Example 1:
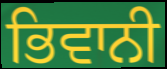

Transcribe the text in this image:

ਭਿਵਾਨੀ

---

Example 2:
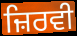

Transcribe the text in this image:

ਜ਼ਿਰਵੀ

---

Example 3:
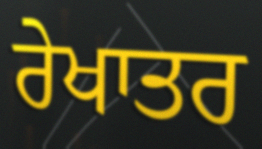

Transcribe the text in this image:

ਰੇਖਾਤਰ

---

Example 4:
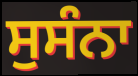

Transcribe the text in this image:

ਸੁਸੰਨਾ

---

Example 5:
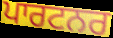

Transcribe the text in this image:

ਪਾਰਟਨਰ